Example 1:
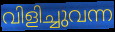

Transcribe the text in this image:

വിളിച്ചുവന്ന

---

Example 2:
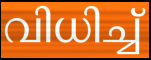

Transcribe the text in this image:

വിധിച്ച്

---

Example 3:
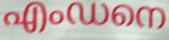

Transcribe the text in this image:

എംഡനെ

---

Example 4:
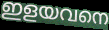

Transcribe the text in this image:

ഇളയവനെ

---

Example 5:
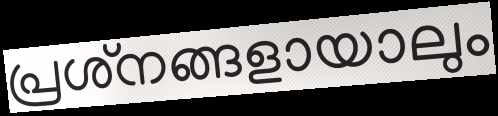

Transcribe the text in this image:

പ്രശ്‌നങ്ങളായാലും